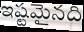
ఇష్టమైనది